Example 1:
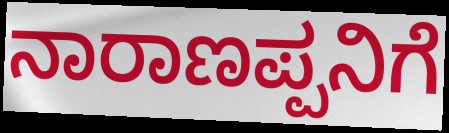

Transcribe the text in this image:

ನಾರಾಣಪ್ಪನಿಗೆ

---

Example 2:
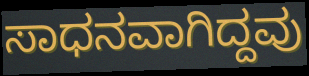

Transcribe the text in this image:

ಸಾಧನವಾಗಿದ್ದವು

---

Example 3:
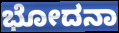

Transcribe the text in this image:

ಭೋದನಾ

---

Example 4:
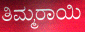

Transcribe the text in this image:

ತಿಮ್ಮರಾಯಿ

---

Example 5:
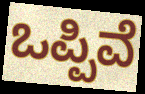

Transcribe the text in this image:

ಒಪ್ಪಿವೆ